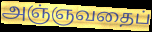
அஞ்ஞவதைப்